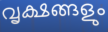
വൃക്ഷങ്ങളും